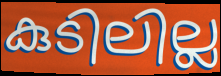
കുടിലില്ല